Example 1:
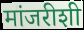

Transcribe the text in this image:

मांजरीशी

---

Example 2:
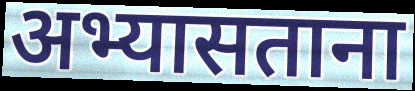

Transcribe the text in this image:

अभ्यासताना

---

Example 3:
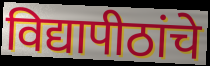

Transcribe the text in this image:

विद्यापीठांचे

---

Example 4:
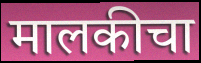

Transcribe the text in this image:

मालकीचा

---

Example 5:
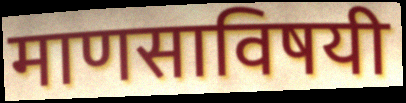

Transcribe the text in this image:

माणसाविषयी